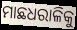
ମାଛଧରାଳିକୁ